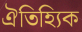
ঐতিহ্যিক